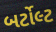
બર્ટોલ્ટ